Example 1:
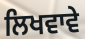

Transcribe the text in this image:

ਲਿਖਵਾਵੇ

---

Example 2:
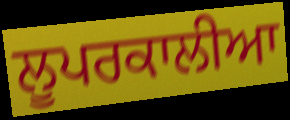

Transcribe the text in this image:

ਲੂਪਰਕਾਲੀਆ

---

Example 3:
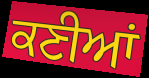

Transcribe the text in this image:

ਕਣੀਆਂ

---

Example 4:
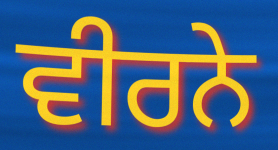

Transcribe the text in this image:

ਵੀਰਨੇ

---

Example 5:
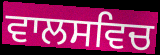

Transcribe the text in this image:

ਵਾਲਸਵਿਚ